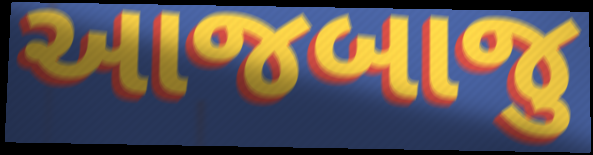
આજબાજુ